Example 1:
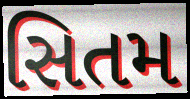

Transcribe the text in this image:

સિતમ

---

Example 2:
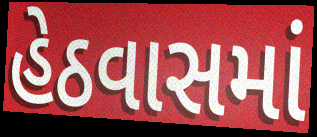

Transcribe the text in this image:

હેઠવાસમાં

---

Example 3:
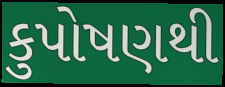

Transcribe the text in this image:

કુપોષણથી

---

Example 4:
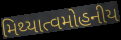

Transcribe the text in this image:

મિથ્યાત્વમોહનીય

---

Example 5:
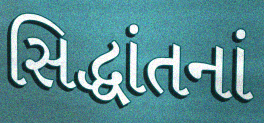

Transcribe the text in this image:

સિદ્ધાંતનાં